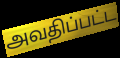
அவதிப்பட்ட